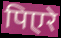
पिएरे